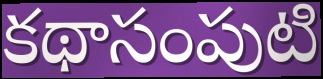
కథాసంపుటి